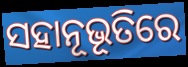
ସହାନୂଭୂତିରେ